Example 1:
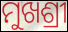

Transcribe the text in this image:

ମୁଖଶ୍ରୀ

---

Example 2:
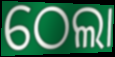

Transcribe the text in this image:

ଠେଲା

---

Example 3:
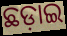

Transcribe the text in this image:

ଛଡ଼ାଇ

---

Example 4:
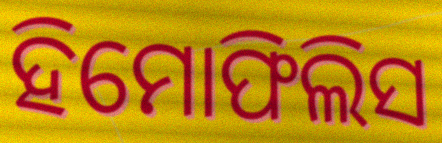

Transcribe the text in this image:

ହିମୋଫିଲିସ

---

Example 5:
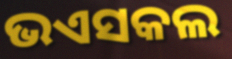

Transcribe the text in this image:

ଭଏସକଲ